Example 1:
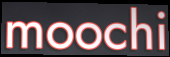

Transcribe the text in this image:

moochi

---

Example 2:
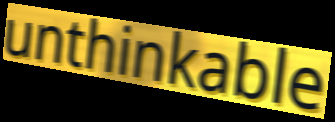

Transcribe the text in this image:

unthinkable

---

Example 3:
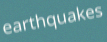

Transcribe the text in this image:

earthquakes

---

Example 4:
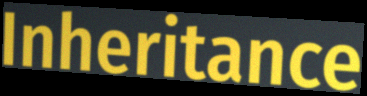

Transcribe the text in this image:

Inheritance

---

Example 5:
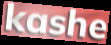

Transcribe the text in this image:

kashe